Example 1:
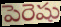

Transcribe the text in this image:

పెరెషు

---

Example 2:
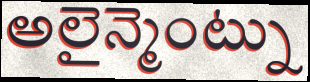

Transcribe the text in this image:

అలైన్మెంట్ను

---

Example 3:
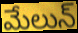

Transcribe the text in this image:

మేలున్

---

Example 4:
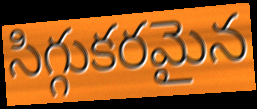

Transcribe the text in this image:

సిగ్గుకరమైన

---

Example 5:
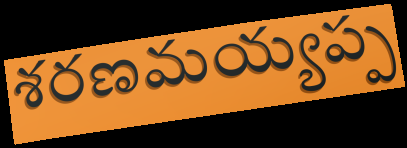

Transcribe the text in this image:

శరణమయ్యప్ప